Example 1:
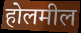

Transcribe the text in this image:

होलमील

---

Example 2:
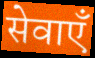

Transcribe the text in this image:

सेवाएँ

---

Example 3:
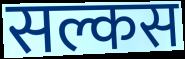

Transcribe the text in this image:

सल्कस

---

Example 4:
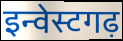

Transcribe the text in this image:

इन्वेस्टगढ़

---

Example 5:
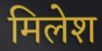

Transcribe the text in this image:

मिलेश